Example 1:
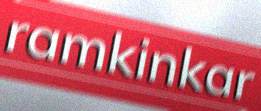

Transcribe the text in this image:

ramkinkar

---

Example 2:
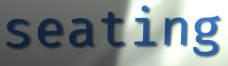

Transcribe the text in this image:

seating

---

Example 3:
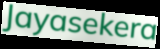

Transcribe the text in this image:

Jayasekera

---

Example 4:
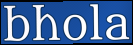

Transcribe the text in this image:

bhola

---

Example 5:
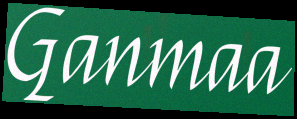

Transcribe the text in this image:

Ganmaa